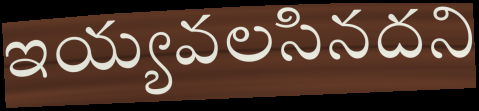
ఇయ్యవలసినదని